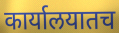
कार्यालयातच